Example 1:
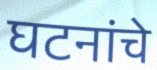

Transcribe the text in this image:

घटनांचे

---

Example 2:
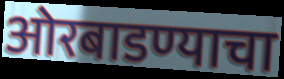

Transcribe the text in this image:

ओरबाडण्याचा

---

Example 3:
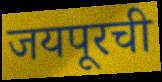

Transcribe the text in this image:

जयपूरची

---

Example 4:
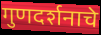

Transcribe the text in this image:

गुणदर्शनाचे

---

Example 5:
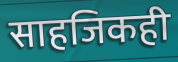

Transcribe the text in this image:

साहजिकही